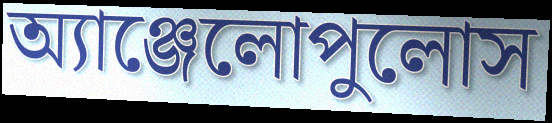
অ্যাঞ্জেলোপুলোস